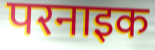
परनाइक